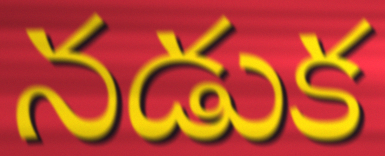
నడుక